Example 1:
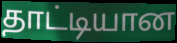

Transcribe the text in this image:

தாட்டியான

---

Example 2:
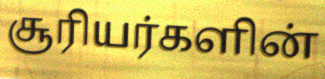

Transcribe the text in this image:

சூரியர்களின்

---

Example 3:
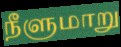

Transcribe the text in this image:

நீளுமாறு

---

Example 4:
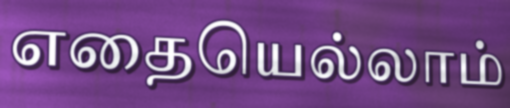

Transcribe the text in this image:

எதையெல்லாம்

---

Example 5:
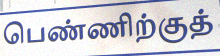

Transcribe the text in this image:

பெண்ணிற்குத்